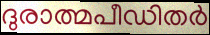
ദുരാത്മപീഡിതർ